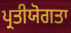
ਪ੍ਰਤੀਯੋਗਤਾ